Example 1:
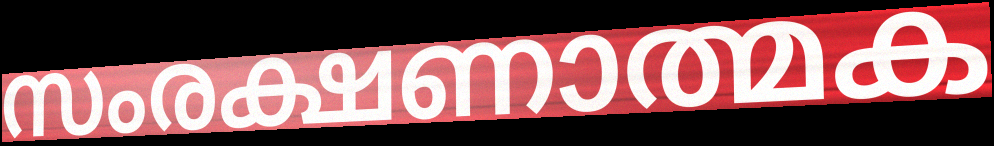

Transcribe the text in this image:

സംരക്ഷണാത്മക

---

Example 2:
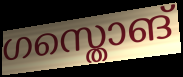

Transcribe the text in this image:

ഗസ്തൊങ്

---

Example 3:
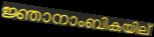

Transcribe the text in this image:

ജ്ഞാനാംബികയില്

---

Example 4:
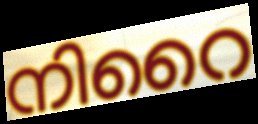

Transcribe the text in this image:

നിറൈ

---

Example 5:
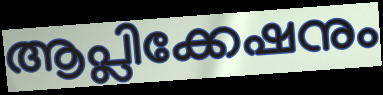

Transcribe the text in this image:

ആപ്ലിക്കേഷനും